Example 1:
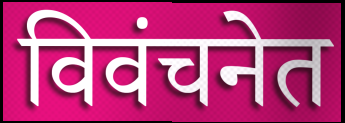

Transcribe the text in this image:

विवंचनेत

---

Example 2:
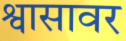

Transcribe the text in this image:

श्वासावर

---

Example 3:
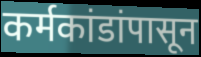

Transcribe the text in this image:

कर्मकांडांपासून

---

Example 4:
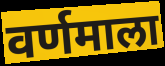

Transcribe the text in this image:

वर्णमाला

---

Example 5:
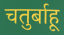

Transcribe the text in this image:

चतुर्बाहू